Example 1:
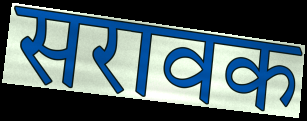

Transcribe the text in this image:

सरावक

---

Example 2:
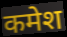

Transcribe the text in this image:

कमेश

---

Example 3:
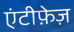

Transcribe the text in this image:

एंटीफ़ेज़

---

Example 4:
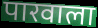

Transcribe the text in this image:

पारवाला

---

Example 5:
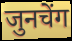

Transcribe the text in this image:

जुनचेंग